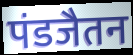
पंडजैतन